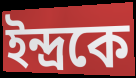
ইন্দ্রকে